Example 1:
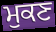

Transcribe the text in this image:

ਮੁਕਣ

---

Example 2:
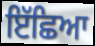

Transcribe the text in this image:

ਇੱਛਿਆ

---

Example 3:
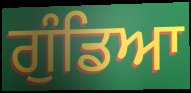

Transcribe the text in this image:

ਗੁੰਡਿਆ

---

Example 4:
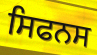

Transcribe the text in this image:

ਸਿਫਨਸ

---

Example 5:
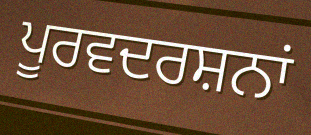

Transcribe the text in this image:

ਪੂਰਵਦਰਸ਼ਨਾਂ